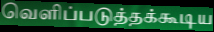
வெளிப்படுத்தக்கூடிய